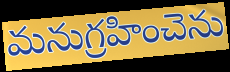
మనుగ్రహించెను